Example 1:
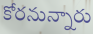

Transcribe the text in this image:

కోరనున్నారు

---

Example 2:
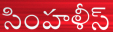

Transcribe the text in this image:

సింహళీస్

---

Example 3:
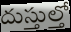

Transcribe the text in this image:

దుస్తుల్తో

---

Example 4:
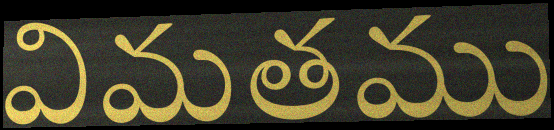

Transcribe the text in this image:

విమతము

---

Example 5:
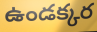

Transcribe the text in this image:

ఉండక్కర